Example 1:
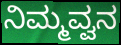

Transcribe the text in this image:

ನಿಮ್ಮವ್ವನ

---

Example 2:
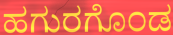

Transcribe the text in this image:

ಹಗುರಗೊಂಡ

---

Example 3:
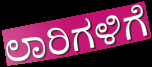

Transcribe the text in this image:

ಲಾರಿಗಳಿಗೆ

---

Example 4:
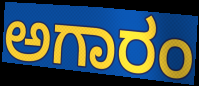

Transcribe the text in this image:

ಅಗಾರಂ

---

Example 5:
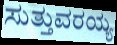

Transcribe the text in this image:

ಸುತ್ತುವರಯ್ಯ